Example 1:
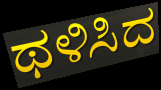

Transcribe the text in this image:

ಥಳಿಸಿದ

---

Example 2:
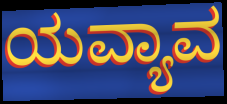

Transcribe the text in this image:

ಯವ್ಯಾವ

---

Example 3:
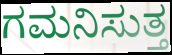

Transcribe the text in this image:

ಗಮನಿಸುತ್ತ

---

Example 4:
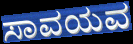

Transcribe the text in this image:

ಸಾವಯವ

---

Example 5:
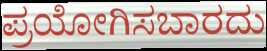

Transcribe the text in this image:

ಪ್ರಯೋಗಿಸಬಾರದು